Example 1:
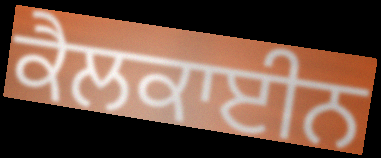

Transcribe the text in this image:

ਕੈਲਕਾਈਨ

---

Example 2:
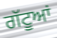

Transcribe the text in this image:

ਗੱਟੂਆਂ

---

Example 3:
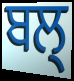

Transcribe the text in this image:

ਬਲ੍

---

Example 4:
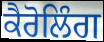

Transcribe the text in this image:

ਕੈਰੋਲਿੰਗ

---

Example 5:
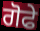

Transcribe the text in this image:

ਗੋਫੇ